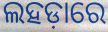
ଲହଡ଼ାରେ